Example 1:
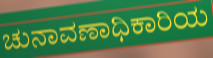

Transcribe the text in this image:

ಚುನಾವಣಾಧಿಕಾರಿಯ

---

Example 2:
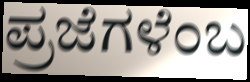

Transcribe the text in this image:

ಪ್ರಜೆಗಳೆಂಬ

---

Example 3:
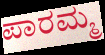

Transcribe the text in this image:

ಪಾರಮ್ಮ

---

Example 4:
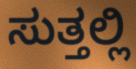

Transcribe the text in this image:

ಸುತ್ತಲ್ಲಿ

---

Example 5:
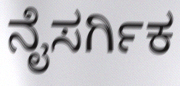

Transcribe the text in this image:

ನೈಸರ್ಗಿಕ